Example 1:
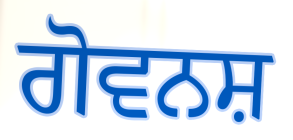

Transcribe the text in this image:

ਗੋਵਨਸ਼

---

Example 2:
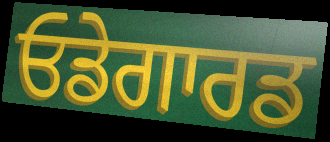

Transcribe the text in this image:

ਓਡੇਗਾਰਡ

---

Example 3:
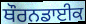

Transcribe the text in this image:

ਥੌਰਨਡਾਈਕ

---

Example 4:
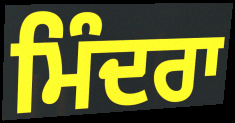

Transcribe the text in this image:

ਮਿੰਦਰਾ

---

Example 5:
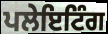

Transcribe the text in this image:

ਪਲੇਇਟਿੰਗ